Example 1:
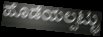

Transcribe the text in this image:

ಹೊಡೆಯಲ್ಪಟ್ಟು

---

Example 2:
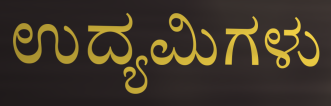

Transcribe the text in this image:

ಉದ್ಯಮಿಗಳು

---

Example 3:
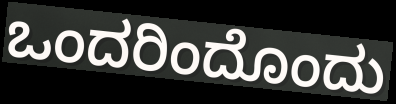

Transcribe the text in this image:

ಒಂದರಿಂದೊಂದು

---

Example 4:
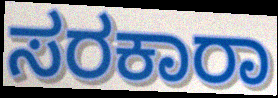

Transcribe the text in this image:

ಸರಕಾರಾ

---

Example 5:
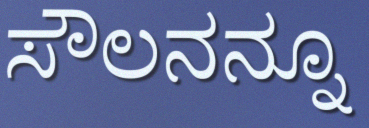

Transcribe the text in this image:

ಸೌಲನನ್ನೂ